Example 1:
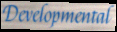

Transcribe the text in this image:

Developmental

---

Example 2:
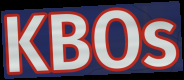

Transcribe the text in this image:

KBOs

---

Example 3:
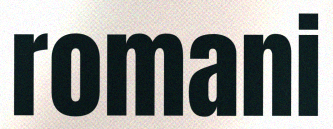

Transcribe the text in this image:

romani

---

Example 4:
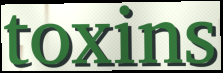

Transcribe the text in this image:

toxins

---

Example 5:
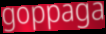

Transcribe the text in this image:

goppaga